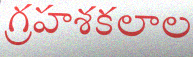
గ్రహశకలాల